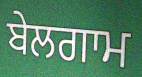
ਬੇਲਗਾਮ